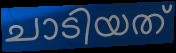
ചാടിയത്